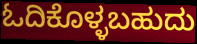
ಓದಿಕೊಳ್ಳಬಹುದು